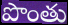
పొంతు